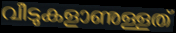
വീടുകളാണുള്ളത്